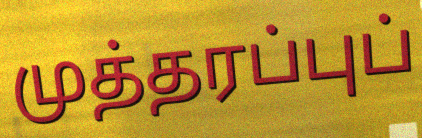
முத்தரப்புப்